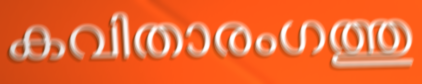
കവിതാരംഗത്തു